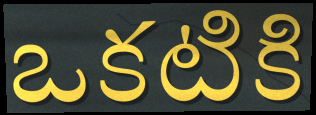
ఒకటికి